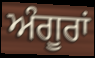
ਅੰਗੂਰਾਂ